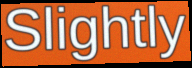
Slightly